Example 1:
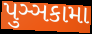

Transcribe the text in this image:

પુઞ્ઞકામા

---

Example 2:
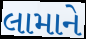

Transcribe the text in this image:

લામાને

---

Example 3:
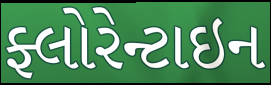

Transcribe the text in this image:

ફ્લોરેન્ટાઇન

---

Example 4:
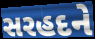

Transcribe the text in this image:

સરહદને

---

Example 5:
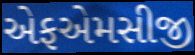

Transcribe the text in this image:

એફએમસીજી